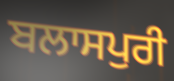
ਬਲਾਸਪੁਰੀ